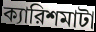
ক্যারিশমাটা